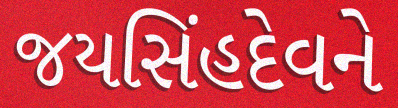
જયસિંહદેવને